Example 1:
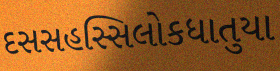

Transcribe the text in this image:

દસસહસ્સિલોકધાતુયા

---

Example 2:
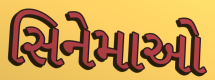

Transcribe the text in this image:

સિનેમાઓ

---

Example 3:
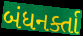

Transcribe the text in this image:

બંધનર્ક્તા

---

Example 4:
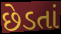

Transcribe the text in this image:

છેડતાં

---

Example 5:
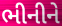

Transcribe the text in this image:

ભીનીને